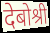
देबोश्री